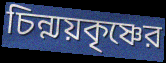
চিন্ময়কৃষ্ণের